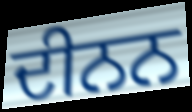
ਦੀਨਨ